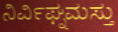
ನಿರ್ವಿಘ್ನಮಸ್ತು